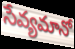
సేవ్యమానో